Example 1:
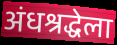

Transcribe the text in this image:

अंधश्रद्धेला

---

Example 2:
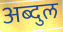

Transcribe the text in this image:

अब्दुल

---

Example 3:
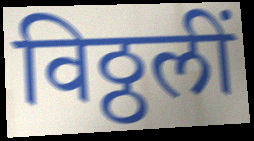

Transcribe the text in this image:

विठ्ठलीं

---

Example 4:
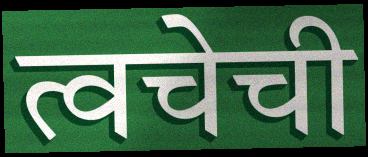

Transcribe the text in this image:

त्वचेची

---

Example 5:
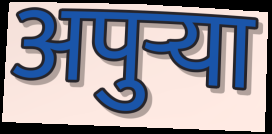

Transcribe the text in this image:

अपुर्‍या